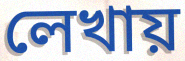
লেখায়